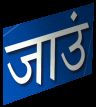
जाउं